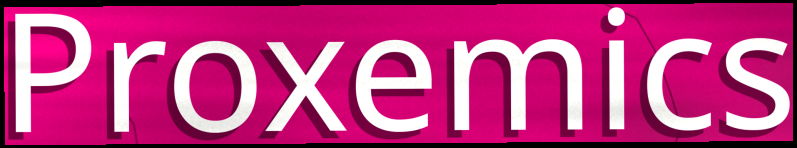
Proxemics